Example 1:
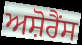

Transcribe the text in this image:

ਅਸ਼ੋਰੈਂਸ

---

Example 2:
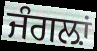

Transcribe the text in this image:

ਜੰਗਲ਼ਾਂ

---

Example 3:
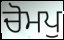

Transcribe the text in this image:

ਚੋਮਪੁ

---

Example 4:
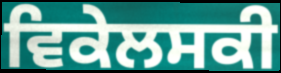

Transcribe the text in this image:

ਵਿਕੇਲਸਕੀ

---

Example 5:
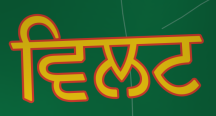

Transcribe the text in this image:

ਵਿਲਟ